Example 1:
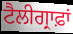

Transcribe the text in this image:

ਟੈਲੀਗ੍ਰਾਫ਼ਾਂ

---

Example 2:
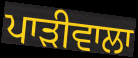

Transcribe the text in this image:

ਪਾੜੀਵਾਲਾ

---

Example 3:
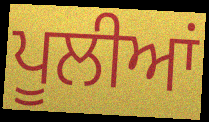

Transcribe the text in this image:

ਪੂਲੀਆਂ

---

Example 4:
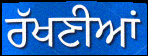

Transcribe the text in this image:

ਰੱਖਣੀਆਂ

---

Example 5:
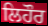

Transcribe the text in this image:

ਲਿਹੌਰ